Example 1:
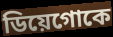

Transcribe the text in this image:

ডিয়েগোকে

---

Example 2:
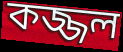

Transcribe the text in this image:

কজ্জল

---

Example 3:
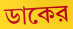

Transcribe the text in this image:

ডাকের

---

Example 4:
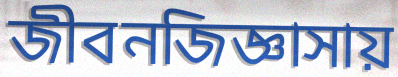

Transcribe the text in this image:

জীবনজিজ্ঞাসায়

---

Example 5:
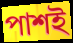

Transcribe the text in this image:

পাশই